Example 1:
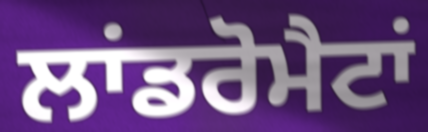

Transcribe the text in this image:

ਲਾਂਡਰੋਮੈਟਾਂ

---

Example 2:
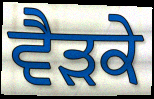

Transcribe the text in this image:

ਵੈੜਕੇ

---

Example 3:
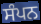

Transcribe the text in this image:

ਸੰਪਨ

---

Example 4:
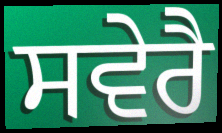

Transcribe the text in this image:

ਸਵੇਰੈ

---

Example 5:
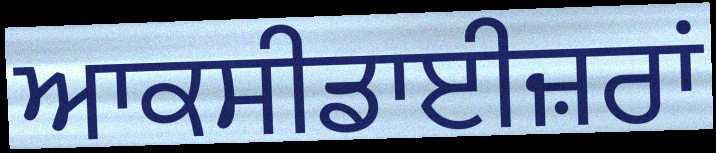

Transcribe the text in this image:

ਆਕਸੀਡਾਈਜ਼ਰਾਂ